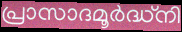
പ്രാസാദമൂർദ്ധ്നി